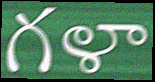
గళా